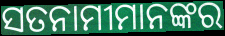
ସତନାମୀମାନଙ୍କର